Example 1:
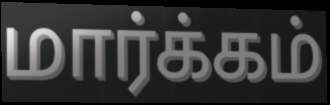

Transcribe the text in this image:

மார்க்கம்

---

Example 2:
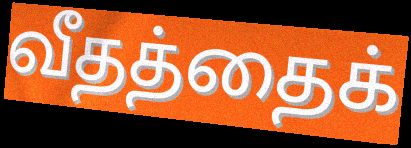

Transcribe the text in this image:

வீதத்தைக்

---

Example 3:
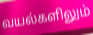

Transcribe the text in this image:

வயல்களிலும்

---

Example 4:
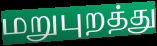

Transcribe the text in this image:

மறுபுறத்து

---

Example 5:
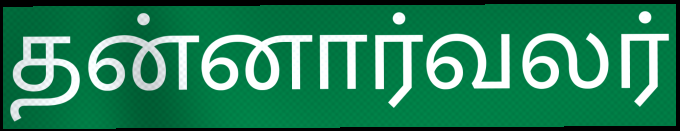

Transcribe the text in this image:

தன்னார்வலர்